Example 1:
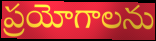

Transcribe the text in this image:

ప్రయోగాలను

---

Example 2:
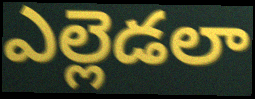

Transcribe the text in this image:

ఎల్లెడలా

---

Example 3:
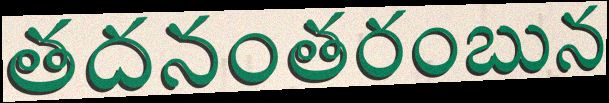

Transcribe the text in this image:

తదనంతరంబున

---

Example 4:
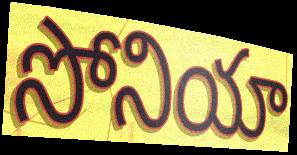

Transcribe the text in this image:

సోనియా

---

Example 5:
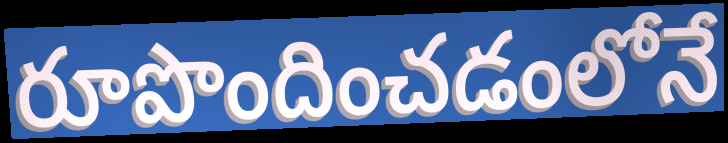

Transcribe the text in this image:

రూపొందించడంలోనే